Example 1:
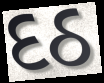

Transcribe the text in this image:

દઠ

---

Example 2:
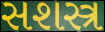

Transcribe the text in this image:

સશસ્ત્ર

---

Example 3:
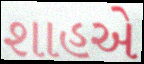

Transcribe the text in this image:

શાહએ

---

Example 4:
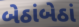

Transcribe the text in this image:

બેઠાંબેઠાં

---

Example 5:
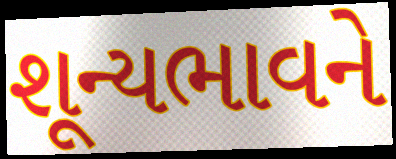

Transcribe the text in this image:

શૂન્યભાવને